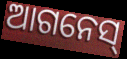
ଆଗନେସ୍